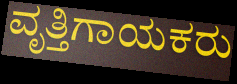
ವೃತ್ತಿಗಾಯಕರು